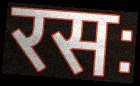
रसः